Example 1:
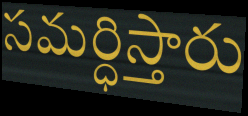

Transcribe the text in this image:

సమర్ధిస్తారు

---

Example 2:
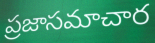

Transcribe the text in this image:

ప్రజాసమాచార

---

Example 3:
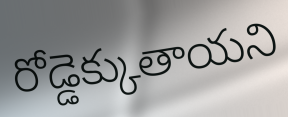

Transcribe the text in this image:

రోడ్డెక్కుతాయని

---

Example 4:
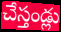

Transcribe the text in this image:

చేస్తండ్లు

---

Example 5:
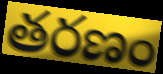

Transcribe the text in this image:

తరణం